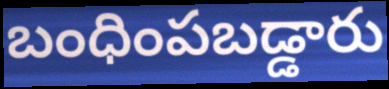
బంధింపబడ్డారు